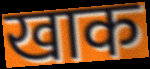
खाक